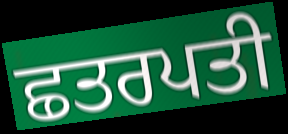
ਛਤਰਪਤੀ